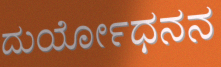
ದುರ್ಯೋಧನನ